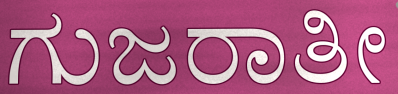
ಗುಜರಾತೀ